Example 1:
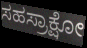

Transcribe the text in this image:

ಸಹಸ್ರಾಕ್ಷೋ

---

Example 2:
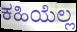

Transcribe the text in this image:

ಕಹಿಯೆಲ್ಲ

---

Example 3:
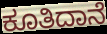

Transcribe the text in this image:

ಕೂತಿದಾನೆ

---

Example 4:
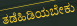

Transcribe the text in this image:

ತಡೆಹಿಡಿಯಬೇಕು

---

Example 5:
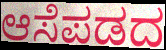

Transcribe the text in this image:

ಆಸೆಪಡದ